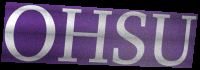
OHSU